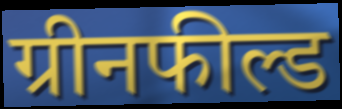
ग्रीनफील्‍ड